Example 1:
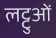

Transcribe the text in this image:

लट्टुओं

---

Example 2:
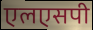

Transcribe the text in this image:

एलएसपी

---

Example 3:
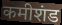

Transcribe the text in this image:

कमीशंड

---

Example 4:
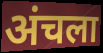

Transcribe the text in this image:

अंचला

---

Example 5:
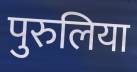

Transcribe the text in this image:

पुरुलिया